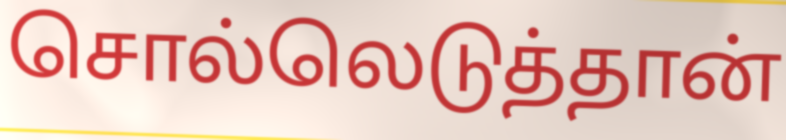
சொல்லெடுத்தான்